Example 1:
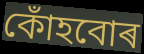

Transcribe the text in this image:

কোঁহবোৰ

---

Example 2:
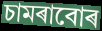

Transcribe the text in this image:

চামৰাবোৰ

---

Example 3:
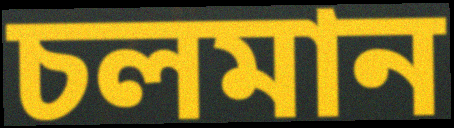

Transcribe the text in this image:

চলমান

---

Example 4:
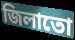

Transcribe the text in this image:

জিলাতো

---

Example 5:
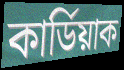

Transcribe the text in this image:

কাৰ্ডিয়াক